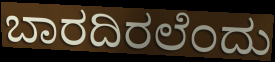
ಬಾರದಿರಲೆಂದು